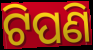
ଟିପଣି